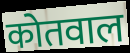
कोतवाल